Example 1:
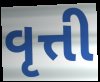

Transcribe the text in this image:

વૃત્તી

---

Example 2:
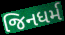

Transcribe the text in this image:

જિનધર્મ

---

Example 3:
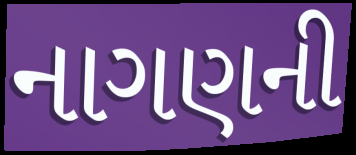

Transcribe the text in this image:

નાગણની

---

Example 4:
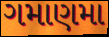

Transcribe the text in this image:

ગમાણમા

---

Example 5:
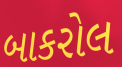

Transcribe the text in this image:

બાકરોલ